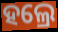
ହଲ୍ରେ